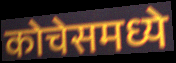
कोचेसमध्ये